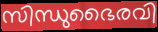
സിന്ധുഭൈരവി